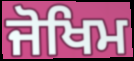
ਜੋਖਿਮ